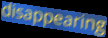
disappearing